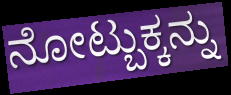
ನೋಟ್ಬುಕ್ಕನ್ನು